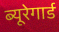
ब्यूरेगार्ड